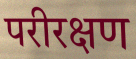
परीरक्षण